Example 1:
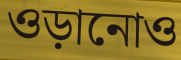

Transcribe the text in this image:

ওড়ানোও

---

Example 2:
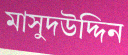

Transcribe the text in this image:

মাসুদউদ্দিন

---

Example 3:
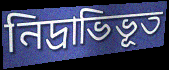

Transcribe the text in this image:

নিদ্রাভিভূত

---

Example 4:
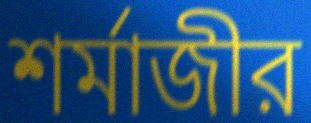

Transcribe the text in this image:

শর্মাজীর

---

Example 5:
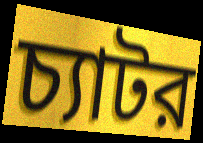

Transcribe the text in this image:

চ্যাটর